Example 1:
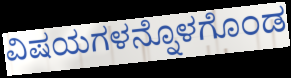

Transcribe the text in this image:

ವಿಷಯಗಳನ್ನೊಳಗೊಂಡ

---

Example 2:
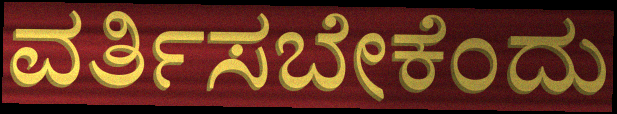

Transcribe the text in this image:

ವರ್ತಿಸಬೇಕೆಂದು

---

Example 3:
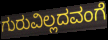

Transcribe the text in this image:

ಗುರುವಿಲ್ಲದವಂಗೆ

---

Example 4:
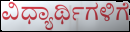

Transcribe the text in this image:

ವಿಧ್ಯಾರ್ಥಿಗಳಿಗೆ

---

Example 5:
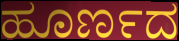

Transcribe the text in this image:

ಹೂರ್ಣದ